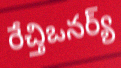
రేచ్తిఒనర్య్